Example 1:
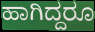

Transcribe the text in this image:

ಹಾಗಿದ್ದರೂ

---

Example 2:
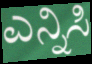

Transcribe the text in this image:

ಎನ್ನಿಸಿ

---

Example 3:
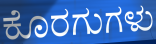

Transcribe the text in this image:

ಕೊರಗುಗಳು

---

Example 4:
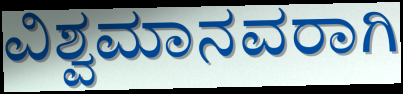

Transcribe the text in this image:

ವಿಶ್ವಮಾನವರಾಗಿ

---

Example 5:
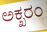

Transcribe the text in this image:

ಅಕ್ಖರಂ